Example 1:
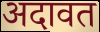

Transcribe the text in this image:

अदावत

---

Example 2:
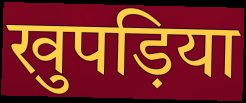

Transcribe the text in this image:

खुपड़िया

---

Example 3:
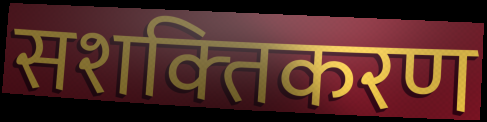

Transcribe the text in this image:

सशक्‍तिकरण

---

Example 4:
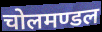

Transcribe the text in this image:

चोलमण्डल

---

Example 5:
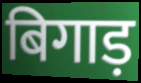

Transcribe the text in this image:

बिगाड़